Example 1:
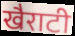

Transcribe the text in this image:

खैराटी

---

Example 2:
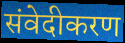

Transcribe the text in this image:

संवेदीकरण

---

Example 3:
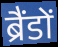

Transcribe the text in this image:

ब्रैंडों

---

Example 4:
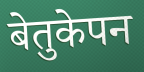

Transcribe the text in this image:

बेतुकेपन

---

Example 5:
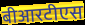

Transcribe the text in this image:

बीआरटीएस